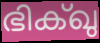
ഭിക്ഖു